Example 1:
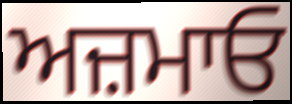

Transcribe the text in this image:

ਅਜ਼ਮਾਓ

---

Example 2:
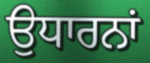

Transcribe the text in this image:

ਉਧਾਰਨਾਂ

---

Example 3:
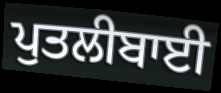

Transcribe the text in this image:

ਪੁਤਲੀਬਾਈ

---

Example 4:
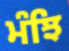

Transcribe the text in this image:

ਮੰਝਿ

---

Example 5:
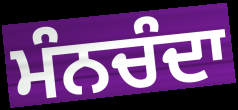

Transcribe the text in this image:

ਮੰਨਚੰਦਾ